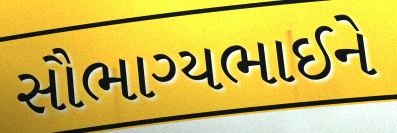
સૌભાગ્યભાઈને